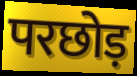
परछोड़